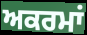
ਅਕਰਮਾਂ